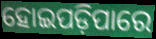
ହୋଇପଡ଼ିପାରେ